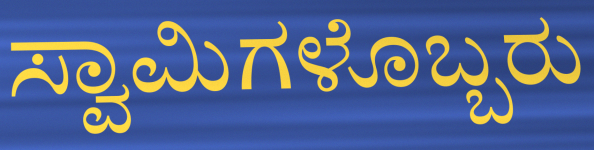
ಸ್ವಾಮಿಗಳೊಬ್ಬರು